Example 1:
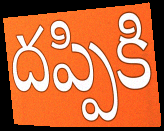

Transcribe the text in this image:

దప్పికి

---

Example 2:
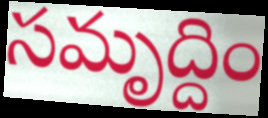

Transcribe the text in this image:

సమృద్దిం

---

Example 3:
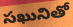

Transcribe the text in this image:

సఖునితో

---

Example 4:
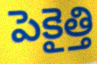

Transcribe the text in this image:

పెకైత్తి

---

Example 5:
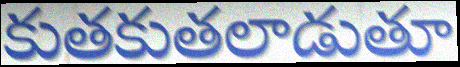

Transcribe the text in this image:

కుతకుతలాడుతూ